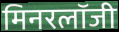
मिनरलॉजी